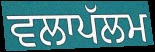
ਵਲਾਪੱਲਮ